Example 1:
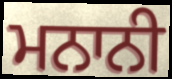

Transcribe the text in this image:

ਮਨਾਨੀ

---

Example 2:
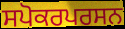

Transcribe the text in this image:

ਸਪੋਕਰਪਰਸਨ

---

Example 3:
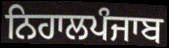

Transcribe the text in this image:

ਨਿਹਾਲਪੰਜਾਬ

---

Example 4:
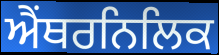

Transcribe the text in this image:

ਐਂਥਰਨਿਲਿਕ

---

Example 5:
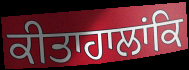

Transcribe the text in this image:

ਕੀਤਾਹਾਲਾਂਕਿ